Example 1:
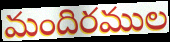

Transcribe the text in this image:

మందిరముల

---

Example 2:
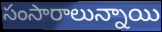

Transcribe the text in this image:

సంసారాలున్నాయి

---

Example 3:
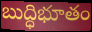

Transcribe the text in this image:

బుద్ధిభూతం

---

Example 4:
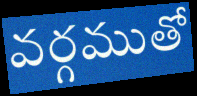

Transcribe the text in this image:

వర్గముతో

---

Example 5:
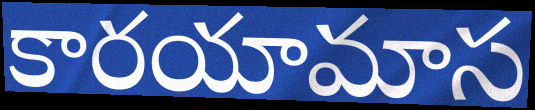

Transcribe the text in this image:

కారయామాస